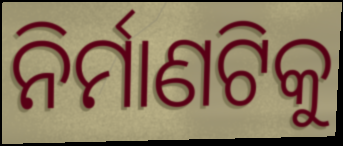
ନିର୍ମାଣଟିକୁ